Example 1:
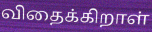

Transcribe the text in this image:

விதைக்கிறாள்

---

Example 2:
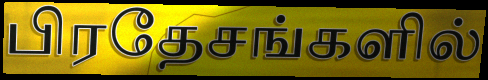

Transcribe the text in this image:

பிரதேசங்களில்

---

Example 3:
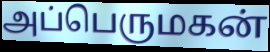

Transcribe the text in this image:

அப்பெருமகன்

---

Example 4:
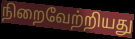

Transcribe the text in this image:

நிறைவேற்றியது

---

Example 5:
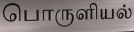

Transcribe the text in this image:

பொருளியல்